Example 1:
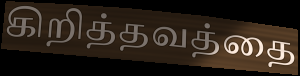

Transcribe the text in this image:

கிறித்தவத்தை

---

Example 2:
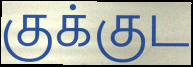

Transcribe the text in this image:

குக்குட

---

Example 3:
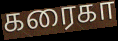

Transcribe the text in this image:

கரைகா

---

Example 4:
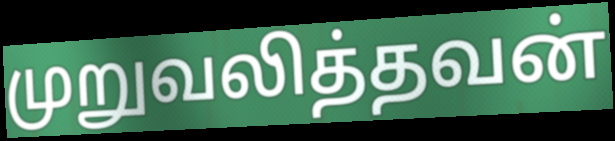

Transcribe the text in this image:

முறுவலித்தவன்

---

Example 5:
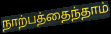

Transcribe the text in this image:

நாற்பத்தைந்தாம்